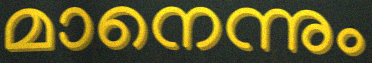
മാനെന്നും